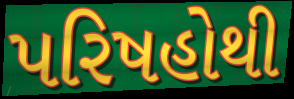
પરિષહોથી